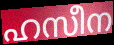
ഹസീന